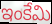
ఇంకేమి